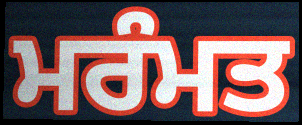
ਮਰੰਮਤ